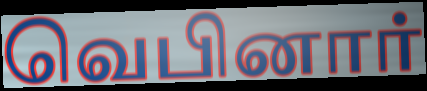
வெபினார்